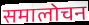
समालोचन